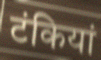
टंकियां